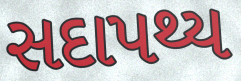
સદાપથ્ય